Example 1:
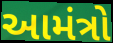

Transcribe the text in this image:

આમંત્રો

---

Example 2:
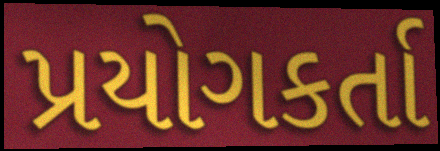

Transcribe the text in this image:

પ્રયોગકર્તા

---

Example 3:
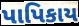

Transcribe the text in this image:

પાપિકાય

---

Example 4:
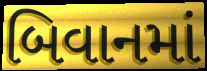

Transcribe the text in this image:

બિવાનમાં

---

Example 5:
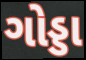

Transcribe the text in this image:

ગોડ્ડા